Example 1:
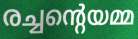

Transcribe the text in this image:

രച്ചന്റെയമ്മ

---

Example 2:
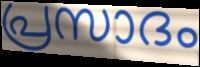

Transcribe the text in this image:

പ്രസാദം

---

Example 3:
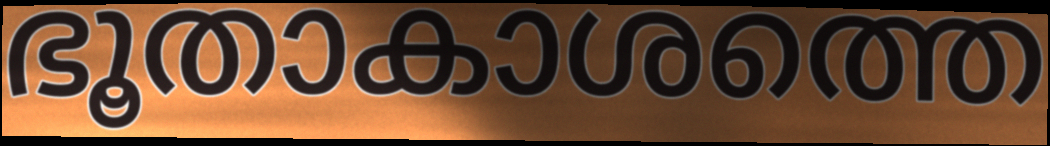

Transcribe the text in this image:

ഭൂതാകാശത്തെ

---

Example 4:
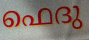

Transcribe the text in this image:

ഫെദു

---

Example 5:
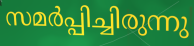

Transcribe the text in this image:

സമർപ്പിച്ചിരുന്നു